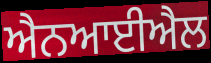
ਐਨਆਈਐਲ